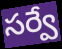
సర్వే